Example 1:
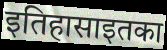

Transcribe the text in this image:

इतिहासाइतका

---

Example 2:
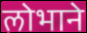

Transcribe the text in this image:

लोभाने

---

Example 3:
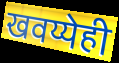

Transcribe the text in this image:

खवय्येही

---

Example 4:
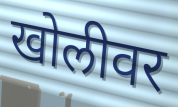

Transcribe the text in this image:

खोलीवर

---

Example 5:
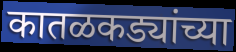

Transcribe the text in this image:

कातळकड्यांच्या